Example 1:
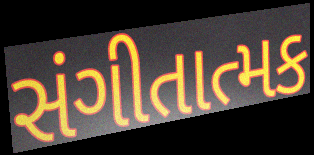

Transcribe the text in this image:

સંગીતાત્મક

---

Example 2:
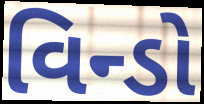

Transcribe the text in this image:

વિન્ડો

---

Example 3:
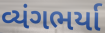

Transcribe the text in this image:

વ્યંગભર્યા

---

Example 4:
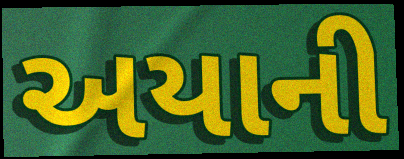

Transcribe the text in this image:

અયાની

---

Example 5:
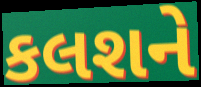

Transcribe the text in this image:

કલશને